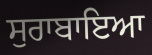
ਸੁਰਾਬਾਇਆ